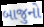
બાજુનો